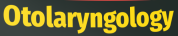
Otolaryngology